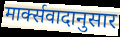
मार्क्सवादानुसार